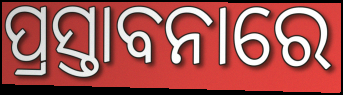
ପ୍ରସ୍ତାବନାରେ